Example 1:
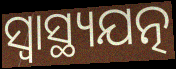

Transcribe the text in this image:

ସ୍ୱାସ୍ଥ୍ୟଯତ୍ନ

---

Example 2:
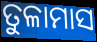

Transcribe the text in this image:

ତୁଳାମାସ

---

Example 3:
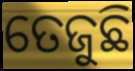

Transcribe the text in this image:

ତେଜୁଛି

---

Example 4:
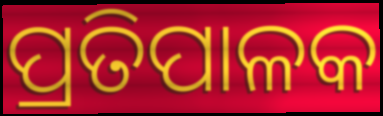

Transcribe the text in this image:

ପ୍ରତିପାଳକ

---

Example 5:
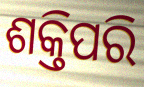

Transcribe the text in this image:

ଶକ୍ତିପରି